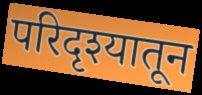
परिदृश्यातून